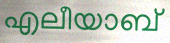
എലീയാബ്